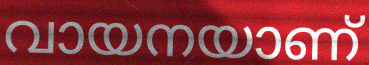
വായനയാണ്